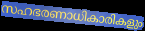
സഹഭരണാധികാരികളും